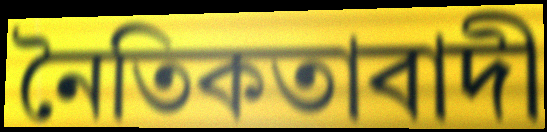
নৈতিকতাবাদী